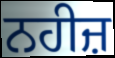
ਨਹੀਜ਼